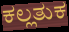
ಕಲ್ಲತುಕ